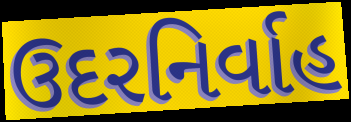
ઉદરનિર્વાહ